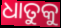
ଧାତୁକୁ